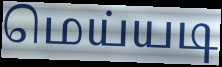
மெய்யடி